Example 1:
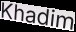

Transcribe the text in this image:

Khadim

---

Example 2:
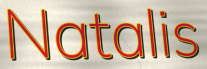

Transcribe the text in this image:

Natalis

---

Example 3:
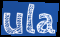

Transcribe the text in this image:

ula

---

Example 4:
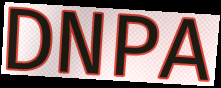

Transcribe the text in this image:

DNPA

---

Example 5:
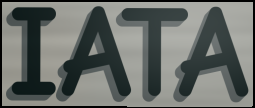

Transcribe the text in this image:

IATA